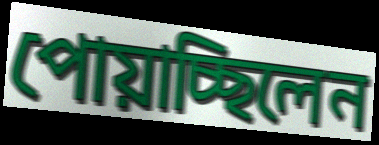
পোয়াচ্ছিলেন